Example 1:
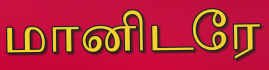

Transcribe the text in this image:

மானிடரே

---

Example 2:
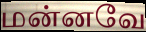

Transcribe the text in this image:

மன்னவே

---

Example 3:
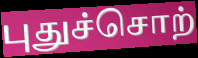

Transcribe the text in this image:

புதுச்சொற்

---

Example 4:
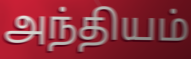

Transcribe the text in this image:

அந்தியம்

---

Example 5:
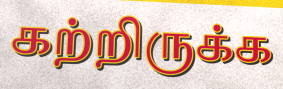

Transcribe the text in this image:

கற்றிருக்க